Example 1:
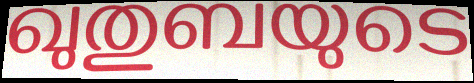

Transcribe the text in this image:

ഖുതുബയുടെ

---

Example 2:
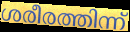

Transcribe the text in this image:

ശരീരത്തിന്ന്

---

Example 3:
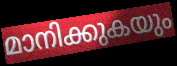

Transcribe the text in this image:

മാനിക്കുകയും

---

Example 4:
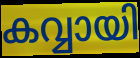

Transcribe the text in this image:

കവ്വായി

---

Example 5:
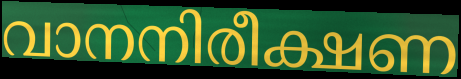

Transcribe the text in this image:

വാനനിരീക്ഷണ